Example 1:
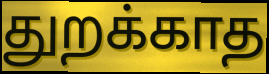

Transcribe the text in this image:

துறக்காத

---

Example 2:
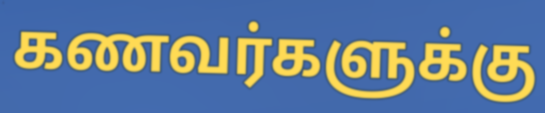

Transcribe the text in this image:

கணவர்களுக்கு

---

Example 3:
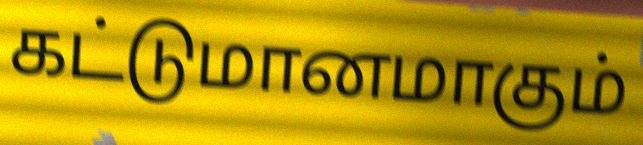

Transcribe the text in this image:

கட்டுமானமாகும்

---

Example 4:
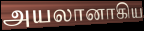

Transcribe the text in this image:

அயலானாகிய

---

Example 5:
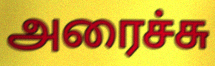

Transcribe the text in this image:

அரைச்சு